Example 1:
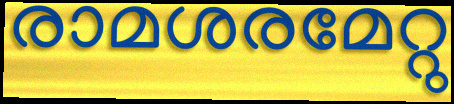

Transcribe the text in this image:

രാമശരമേറ്റു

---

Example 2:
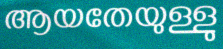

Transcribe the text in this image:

ആയതേയുള്ളു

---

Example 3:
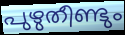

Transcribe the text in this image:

പുഴുതീണ്ടും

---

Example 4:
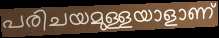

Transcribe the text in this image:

പരിചയമുള്ളയാളാണ്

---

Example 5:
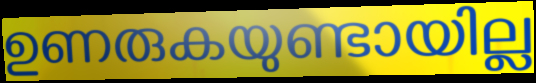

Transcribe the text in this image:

ഉണരുകയുണ്ടായില്ല